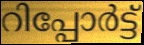
റിപ്പോർട്ട്